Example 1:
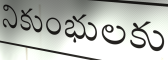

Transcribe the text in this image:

నికుంభులకు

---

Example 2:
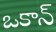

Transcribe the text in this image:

ఒకాన్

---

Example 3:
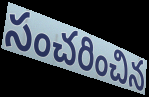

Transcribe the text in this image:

సంచరించిన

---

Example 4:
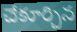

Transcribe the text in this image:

చేకూర్చిన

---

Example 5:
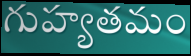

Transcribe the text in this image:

గుహ్యతమం